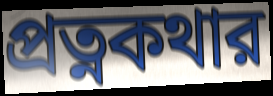
প্রত্নকথার